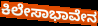
ಕಿಲೇಸಾಭಾವೇನ